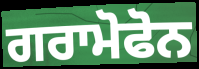
ਗਰਾਮੋਫੋਨ